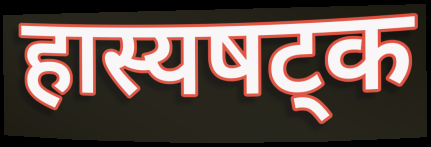
हास्यषट्क